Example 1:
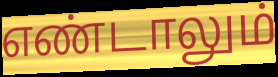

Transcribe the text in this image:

எண்டாலும்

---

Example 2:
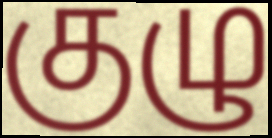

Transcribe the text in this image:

குழு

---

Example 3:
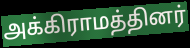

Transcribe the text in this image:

அக்கிராமத்தினர்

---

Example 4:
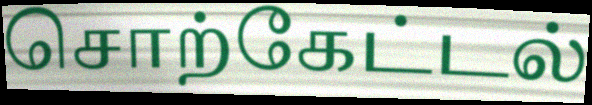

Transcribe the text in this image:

சொற்கேட்டல்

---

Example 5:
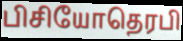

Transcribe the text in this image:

பிசியோதெரபி